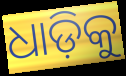
ଧାଡ଼ିକୁ